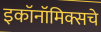
इकॉनॉमिक्सचे